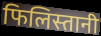
फिलिस्तानी